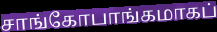
சாங்கோபாங்கமாகப்